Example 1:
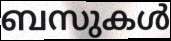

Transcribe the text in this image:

ബസുകൾ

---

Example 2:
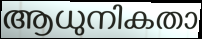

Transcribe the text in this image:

ആധുനികതാ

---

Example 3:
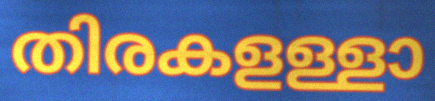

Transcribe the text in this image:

തിരകളള്ളാ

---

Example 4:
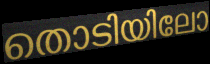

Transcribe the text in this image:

തൊടിയിലോ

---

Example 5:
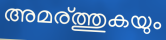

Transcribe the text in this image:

അമര്ത്തുകയും